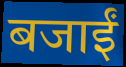
बजाईं